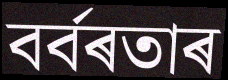
বৰ্বৰতাৰ